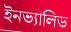
ইনভ্যালিড